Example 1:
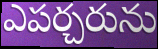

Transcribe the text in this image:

ఎపర్చరును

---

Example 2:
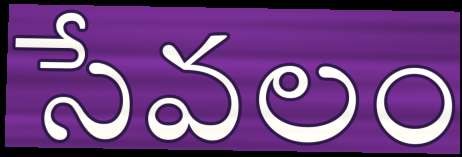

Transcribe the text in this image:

సేవలం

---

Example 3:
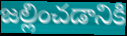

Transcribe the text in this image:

జల్లించడానికి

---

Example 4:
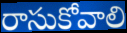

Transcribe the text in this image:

రాసుకోవాలి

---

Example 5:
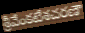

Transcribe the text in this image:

శ్రీవేంకటేశచరణౌ